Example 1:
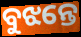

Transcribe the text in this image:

ବୁଝନ୍ତେ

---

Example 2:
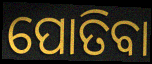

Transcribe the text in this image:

ପୋତିବା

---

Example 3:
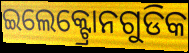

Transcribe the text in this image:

ଇଲେକ୍ଟ୍ରୋନଗୁଡିକ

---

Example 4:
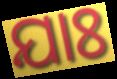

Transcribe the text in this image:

ଯାଃ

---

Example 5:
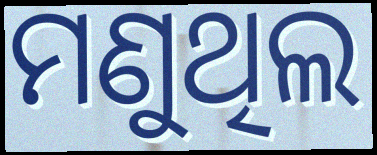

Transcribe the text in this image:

ମଣୁଥିଲ